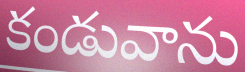
కండువాను